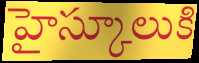
హైస్కూలుకి